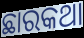
ଛାରକଥା